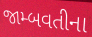
જામ્બવતીના